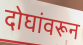
दोघांवरून